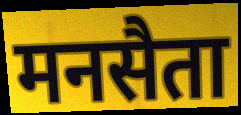
मनसैता